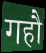
गहौ